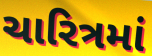
ચારિત્રમાં